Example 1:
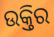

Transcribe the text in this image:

ଉକ୍ତିର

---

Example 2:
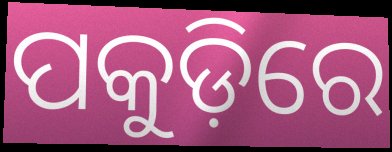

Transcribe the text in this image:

ପକୁଡ଼ିରେ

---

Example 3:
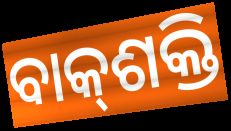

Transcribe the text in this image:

ବାକ୍‍ଶକ୍ତି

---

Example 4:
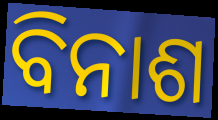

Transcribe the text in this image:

ବିନାଶ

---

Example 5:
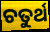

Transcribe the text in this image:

ଚତୁର୍ଥ